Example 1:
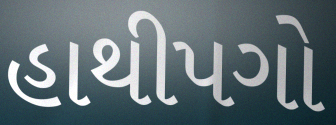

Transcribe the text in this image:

હાથીપગો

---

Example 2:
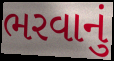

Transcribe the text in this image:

ભરવાનું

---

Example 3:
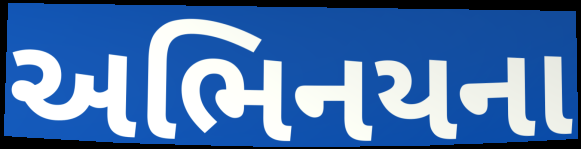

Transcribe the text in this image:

અભિનયના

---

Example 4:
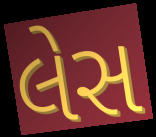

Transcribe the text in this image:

લેસ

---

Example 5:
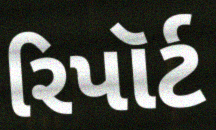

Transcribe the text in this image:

રિપૉર્ટ